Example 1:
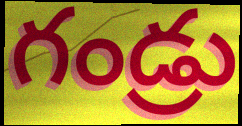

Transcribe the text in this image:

గండ్రు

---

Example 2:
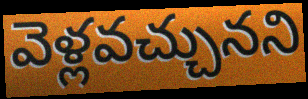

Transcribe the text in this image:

వెళ్లవచ్చునని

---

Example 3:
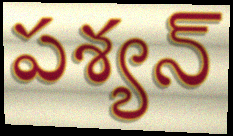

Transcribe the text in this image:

పశ్యన్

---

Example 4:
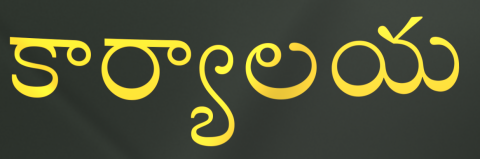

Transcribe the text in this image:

కార్యాలయ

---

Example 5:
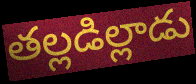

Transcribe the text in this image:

తల్లడిల్లాడు